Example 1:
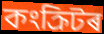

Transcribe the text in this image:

কংক্ৰিটৰ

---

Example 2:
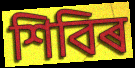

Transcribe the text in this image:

শিবিৰ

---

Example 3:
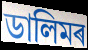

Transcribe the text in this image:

ডালিমৰ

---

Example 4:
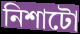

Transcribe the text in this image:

নিশাটো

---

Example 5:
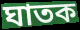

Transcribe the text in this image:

ঘাতক